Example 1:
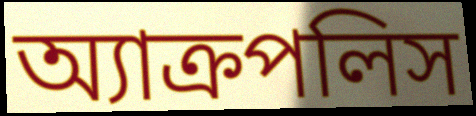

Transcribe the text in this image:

অ্যাক্রপলিস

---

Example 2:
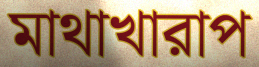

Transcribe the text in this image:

মাথাখারাপ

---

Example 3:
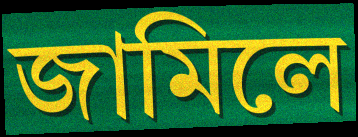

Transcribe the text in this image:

জামিলে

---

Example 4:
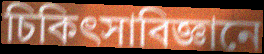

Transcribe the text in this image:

চিকিৎসাবিজ্ঞানে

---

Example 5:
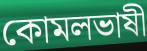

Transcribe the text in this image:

কোমলভাষী